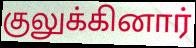
குலுக்கினார்